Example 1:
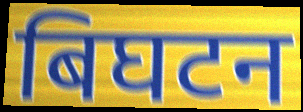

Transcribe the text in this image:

बिघटन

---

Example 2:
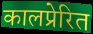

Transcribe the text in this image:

कालप्रेरित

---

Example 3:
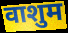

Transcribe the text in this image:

वाशुम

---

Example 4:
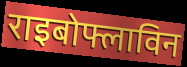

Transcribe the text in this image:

राइबोफ्लाविन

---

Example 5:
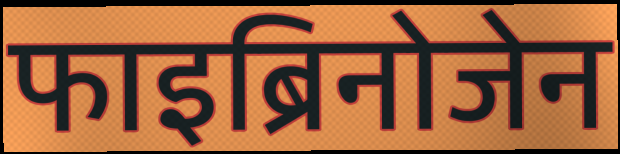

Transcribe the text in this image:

फाइब्रिनोजेन